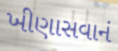
ખીણાસવાનં